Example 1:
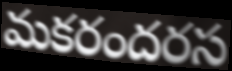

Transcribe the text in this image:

మకరందరస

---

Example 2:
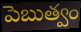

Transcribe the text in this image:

పెబుత్వం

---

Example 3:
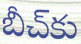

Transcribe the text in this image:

బీచ్‌కు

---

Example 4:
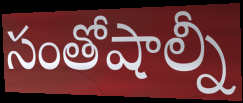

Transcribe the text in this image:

సంతోషాల్నీ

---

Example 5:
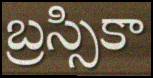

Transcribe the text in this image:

బ్రస్సికా